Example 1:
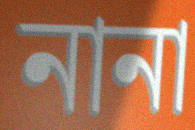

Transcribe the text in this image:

নানা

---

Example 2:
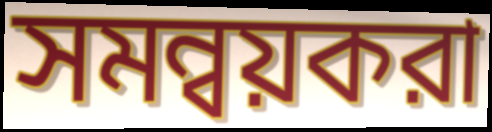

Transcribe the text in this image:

সমন্বয়করা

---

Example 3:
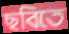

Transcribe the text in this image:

ছবিতে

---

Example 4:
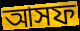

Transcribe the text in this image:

আসফ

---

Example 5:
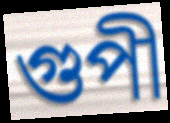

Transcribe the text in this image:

গুপী